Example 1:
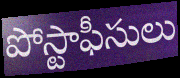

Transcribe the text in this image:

పోస్టాఫీసులు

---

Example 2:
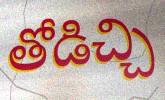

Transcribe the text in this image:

తోడిచ్చి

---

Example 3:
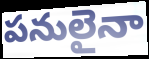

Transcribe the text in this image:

పనులైనా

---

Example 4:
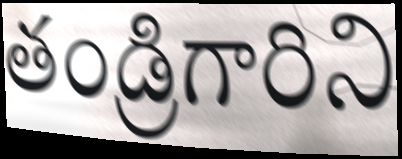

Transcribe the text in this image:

తండ్రిగారిని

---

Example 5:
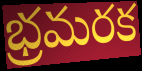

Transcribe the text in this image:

భ్రమరక